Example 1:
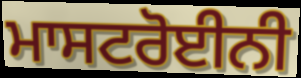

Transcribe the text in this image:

ਮਾਸਟਰੋਈਨੀ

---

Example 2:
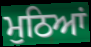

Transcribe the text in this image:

ਮੁਠਿਆਂ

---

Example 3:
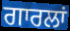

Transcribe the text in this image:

ਗਾਰਲਾਂ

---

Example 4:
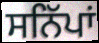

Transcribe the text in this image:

ਸਨਿੱਪਾਂ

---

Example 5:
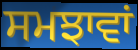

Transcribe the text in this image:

ਸਮਝਾਵਾਂ